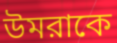
উমরাকে